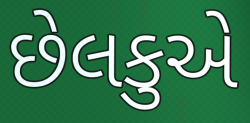
છેલકુએ